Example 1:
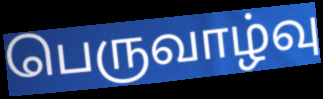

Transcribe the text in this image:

பெருவாழ்வு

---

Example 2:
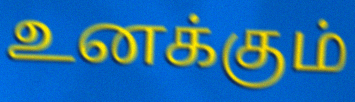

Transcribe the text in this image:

உனக்கும்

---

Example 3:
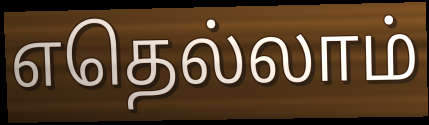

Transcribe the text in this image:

எதெல்லாம்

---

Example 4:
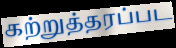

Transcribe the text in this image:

கற்றுத்தரப்பட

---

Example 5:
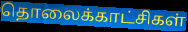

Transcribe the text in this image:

தொலைக்காட்சிகள்